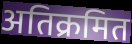
अतिक्रमित